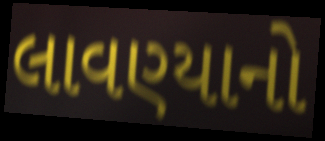
લાવણ્યાનો